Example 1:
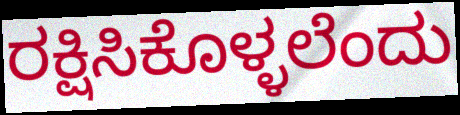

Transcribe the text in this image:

ರಕ್ಷಿಸಿಕೊಳ್ಳಲೆಂದು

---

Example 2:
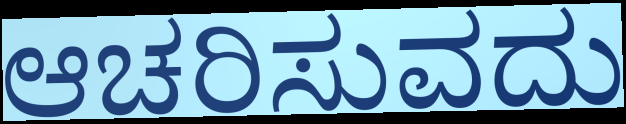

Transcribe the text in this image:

ಆಚರಿಸುವದು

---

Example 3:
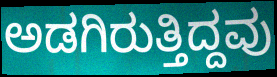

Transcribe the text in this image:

ಅಡಗಿರುತ್ತಿದ್ದವು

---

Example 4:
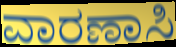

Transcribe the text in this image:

ವಾರಣಾಸಿ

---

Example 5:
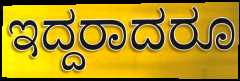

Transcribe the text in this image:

ಇದ್ದರಾದರೂ